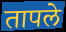
तापले